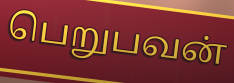
பெறுபவன்